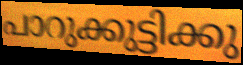
പാറുക്കുട്ടിക്കു